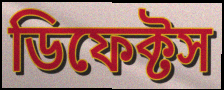
ডিফেক্টস